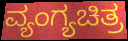
ವ್ಯಂಗ್ಯಚಿತ್ರ